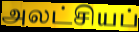
அலட்சியப்